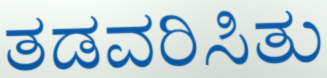
ತಡವರಿಸಿತು